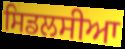
ਸਿਡਲਸੀਆ